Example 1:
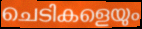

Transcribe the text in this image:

ചെടികളെയും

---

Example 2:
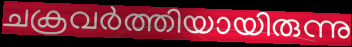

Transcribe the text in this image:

ചക്രവർത്തിയായിരുന്നു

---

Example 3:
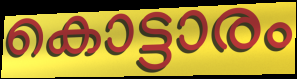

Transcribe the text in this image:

കൊട്ടാരം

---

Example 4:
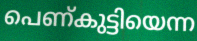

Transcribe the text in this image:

പെണ്കുട്ടിയെന്ന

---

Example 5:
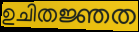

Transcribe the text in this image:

ഉചിതജ്ഞത